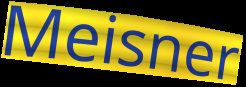
Meisner